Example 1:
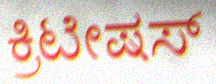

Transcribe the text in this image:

ಕ್ರಿಟೇಷಸ್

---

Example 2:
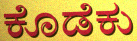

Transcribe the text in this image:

ಕೊಡೆಕು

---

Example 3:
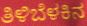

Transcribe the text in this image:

ತಿಳಿಬೆಳಕಿನ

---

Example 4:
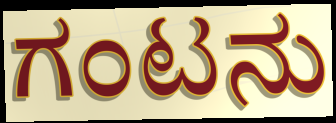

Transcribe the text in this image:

ಗಂಟನು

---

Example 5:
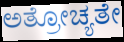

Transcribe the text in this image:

ಅತ್ರೋಚ್ಯತೇ